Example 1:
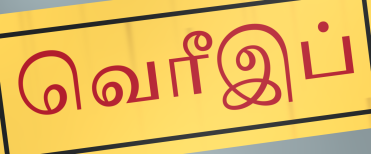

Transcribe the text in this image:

வெரீஇப்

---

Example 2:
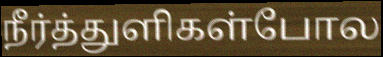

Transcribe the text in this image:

நீர்த்துளிகள்போல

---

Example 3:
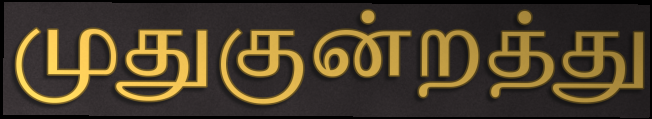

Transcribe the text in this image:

முதுகுன்றத்து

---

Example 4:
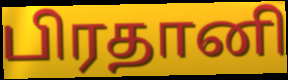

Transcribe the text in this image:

பிரதானி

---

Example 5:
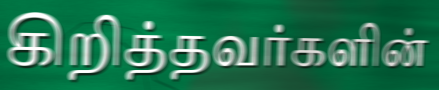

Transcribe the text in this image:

கிறித்தவர்களின்